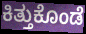
ಕಿತ್ತುಕೊಂಡೆ